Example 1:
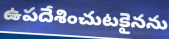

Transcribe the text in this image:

ఉపదేశించుటకైనను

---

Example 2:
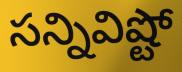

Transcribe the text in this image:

సన్నివిష్టో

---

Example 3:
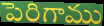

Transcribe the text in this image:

పెరిగాము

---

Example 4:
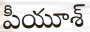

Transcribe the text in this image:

పీయూశ్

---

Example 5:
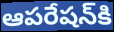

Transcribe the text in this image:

ఆపరేషన్‌కి